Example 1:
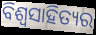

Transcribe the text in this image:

ବିଶ୍ୱସାହିତ୍ୟର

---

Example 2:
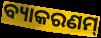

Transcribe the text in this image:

ବ୍ୟାକରଣମ୍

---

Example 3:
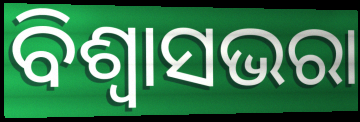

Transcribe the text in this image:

ବିଶ୍ୱାସଭରା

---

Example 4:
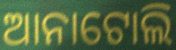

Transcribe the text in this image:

ଆନାଟୋଲି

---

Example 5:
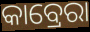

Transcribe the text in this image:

କାବ୍ରେରା